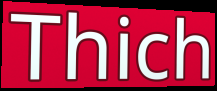
Thich